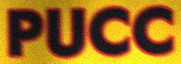
PUCC